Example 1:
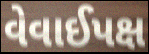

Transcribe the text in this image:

વેવાઈપક્ષ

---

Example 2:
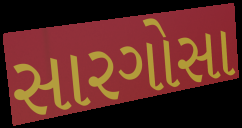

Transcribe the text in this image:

સારગોસા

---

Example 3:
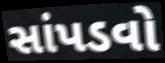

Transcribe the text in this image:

સાંપડવો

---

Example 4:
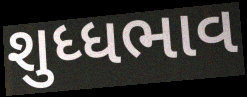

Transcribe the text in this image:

શુધ્ધભાવ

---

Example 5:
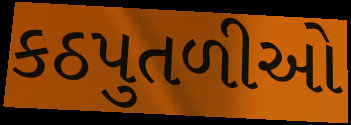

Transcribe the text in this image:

કઠપુતળીઓ